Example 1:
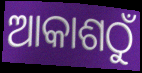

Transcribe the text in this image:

ଆକାଶଠୁଁ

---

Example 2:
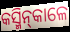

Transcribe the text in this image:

କସ୍ମିନ୍‍କାଳେ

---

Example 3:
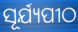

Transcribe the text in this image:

ସୂର୍ଯ୍ୟପୀଠ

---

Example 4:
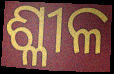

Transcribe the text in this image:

ଶ୍ଳୀଳ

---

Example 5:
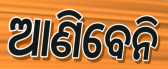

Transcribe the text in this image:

ଆଣିବେନି